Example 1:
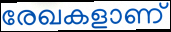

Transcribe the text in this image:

രേഖകളാണ്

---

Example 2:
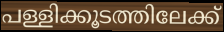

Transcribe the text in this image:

പള്ളിക്കൂടത്തിലേക്ക്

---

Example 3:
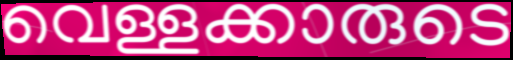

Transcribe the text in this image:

വെള്ളക്കാരുടെ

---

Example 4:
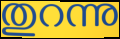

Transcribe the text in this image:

തുറന്നു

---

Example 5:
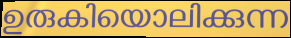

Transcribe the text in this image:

ഉരുകിയൊലിക്കുന്ന